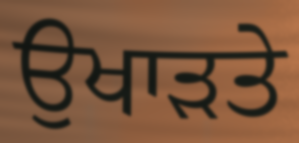
ਉਖਾੜਤੇ